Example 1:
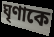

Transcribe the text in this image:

ঘৃণাকে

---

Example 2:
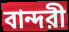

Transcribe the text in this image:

বান্দরী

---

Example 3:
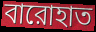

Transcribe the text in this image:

বারোহাত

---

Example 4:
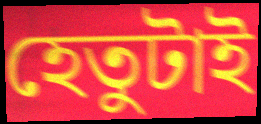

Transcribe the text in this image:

হেতুটাই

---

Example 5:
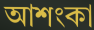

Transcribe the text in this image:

আশংকা